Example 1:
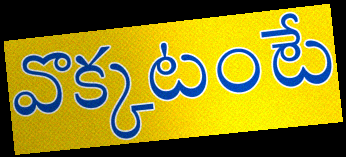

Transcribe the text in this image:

వొక్కటంటే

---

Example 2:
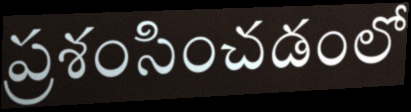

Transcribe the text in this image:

ప్రశంసించడంలో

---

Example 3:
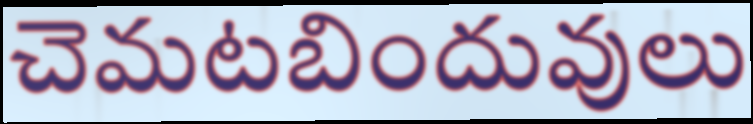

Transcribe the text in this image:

చెమటబిందువులు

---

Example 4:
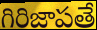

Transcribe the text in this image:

గిరిజాపతే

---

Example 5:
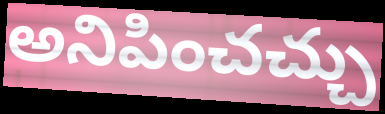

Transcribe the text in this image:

అనిపించచ్చు